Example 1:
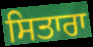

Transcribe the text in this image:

ਸਿਤਾਰਾ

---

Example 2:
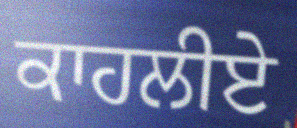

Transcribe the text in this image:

ਕਾਹਲੀਏ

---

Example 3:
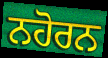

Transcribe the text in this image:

ਨਹੋਰਨ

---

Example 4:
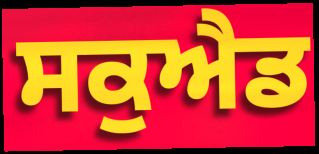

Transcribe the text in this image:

ਸਕੁਐਡ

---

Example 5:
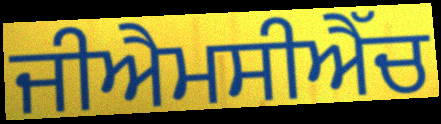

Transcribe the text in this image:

ਜੀਐਮਸੀਐੱਚ